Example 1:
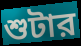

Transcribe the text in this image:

শুটার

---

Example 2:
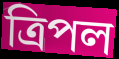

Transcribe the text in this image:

ত্রিপল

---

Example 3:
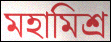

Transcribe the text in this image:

মহামিশ্র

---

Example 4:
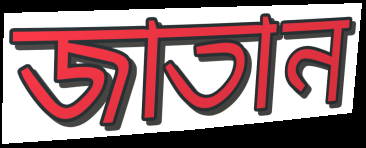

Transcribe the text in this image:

জাতান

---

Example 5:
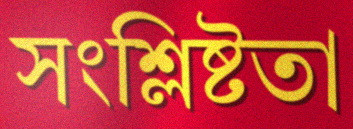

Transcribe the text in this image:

সংশ্লিষ্টতা